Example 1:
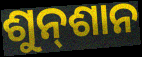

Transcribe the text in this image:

ଶୁନ୍‍ଶାନ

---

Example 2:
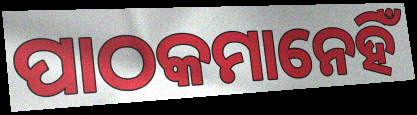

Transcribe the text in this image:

ପାଠକମାନେହିଁ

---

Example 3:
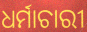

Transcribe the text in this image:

ଧର୍ମାଚାରୀ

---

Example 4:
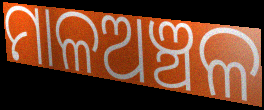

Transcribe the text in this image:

ମାଳଅଞ୍ଚଳ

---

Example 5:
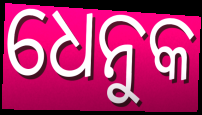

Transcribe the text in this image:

ଧେନୁକ